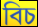
বিচ